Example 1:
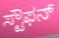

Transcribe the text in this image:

ಸ್ಟೌಫನ್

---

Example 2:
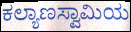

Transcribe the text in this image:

ಕಲ್ಯಾಣಸ್ವಾಮಿಯ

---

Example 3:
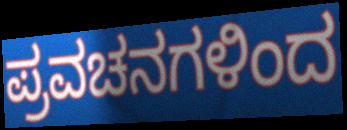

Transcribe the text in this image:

ಪ್ರವಚನಗಳಿಂದ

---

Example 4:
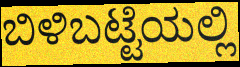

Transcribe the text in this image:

ಬಿಳಿಬಟ್ಟೆಯಲ್ಲಿ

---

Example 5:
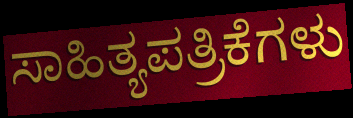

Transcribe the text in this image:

ಸಾಹಿತ್ಯಪತ್ರಿಕೆಗಳು